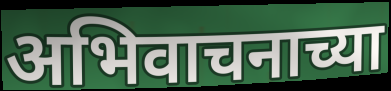
अभिवाचनाच्या